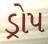
ડ્રોપ